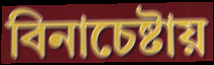
বিনাচেষ্টায়